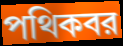
পথিকবর